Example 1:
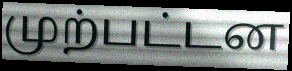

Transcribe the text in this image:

முற்பட்டன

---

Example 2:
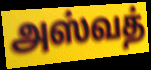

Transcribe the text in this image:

அஸ்வத்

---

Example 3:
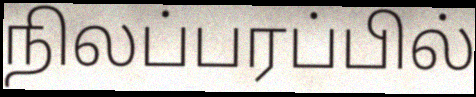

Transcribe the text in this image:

நிலப்பரப்பில்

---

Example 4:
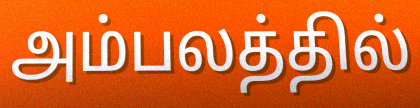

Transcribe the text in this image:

அம்பலத்தில்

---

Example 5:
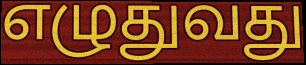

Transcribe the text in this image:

எழுதுவது